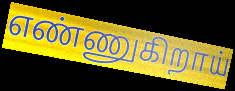
எண்ணுகிறாய்